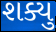
શક્યુ